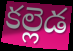
కల్లెడ